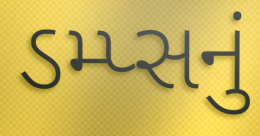
ડમ્પ્સનું